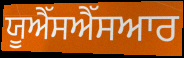
ਯੂਐੱਸਐੱਸਆਰ